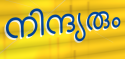
നിന്ദ്യരും